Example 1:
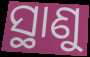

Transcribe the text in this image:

ସ୍ଥାଣୁ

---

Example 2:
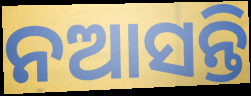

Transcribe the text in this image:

ନଆସନ୍ତି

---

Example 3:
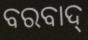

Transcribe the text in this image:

ବରବାଦ୍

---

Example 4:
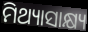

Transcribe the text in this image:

ମିଥ୍ୟାସାକ୍ଷ୍ୟ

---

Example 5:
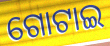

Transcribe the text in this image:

ଗୋଟାଇ